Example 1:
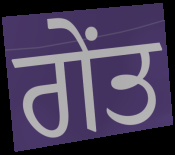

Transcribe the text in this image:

ਗੇਂਤ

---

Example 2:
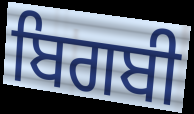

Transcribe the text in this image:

ਬਿਗਬੀ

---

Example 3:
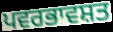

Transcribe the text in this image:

ਪਵਰਭਾਵਸ਼ਤ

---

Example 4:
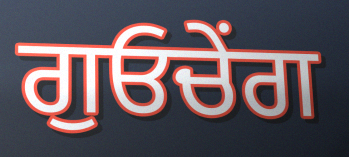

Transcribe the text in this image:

ਗੁਓਚੇਂਗ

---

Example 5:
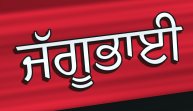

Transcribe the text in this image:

ਜੱਗੂਭਾਈ